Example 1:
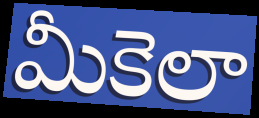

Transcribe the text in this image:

మీకెలా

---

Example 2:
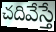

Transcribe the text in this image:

చదివేస్తే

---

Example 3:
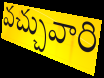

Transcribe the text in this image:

వచ్చువారి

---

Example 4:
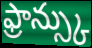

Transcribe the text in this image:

ఫ్రాన్స్కు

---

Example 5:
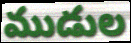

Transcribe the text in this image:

ముడుల